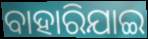
ବାହାରିଯାଇ